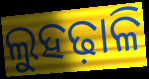
ଲୁହଢ଼ାଳି